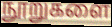
நூறுகளை